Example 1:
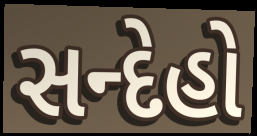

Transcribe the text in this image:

સન્દેહો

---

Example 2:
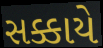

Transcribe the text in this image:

સક્કાયે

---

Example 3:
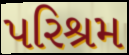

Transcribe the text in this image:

પરિશ્રમ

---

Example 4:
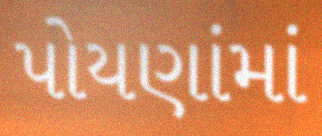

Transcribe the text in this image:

પોયણાંમાં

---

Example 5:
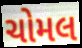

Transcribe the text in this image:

ચોમલ